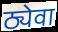
ठ्येवा